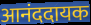
आनंददायक